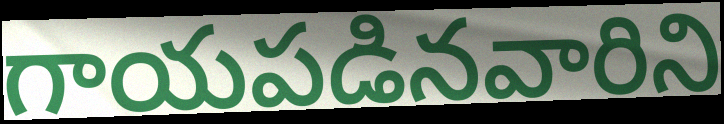
గాయపడినవారిని